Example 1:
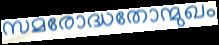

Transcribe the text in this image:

സമരോദ്ധതോന്മുഖം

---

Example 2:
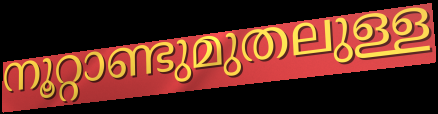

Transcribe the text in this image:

നൂറ്റാണ്ടുമുതലുള്ള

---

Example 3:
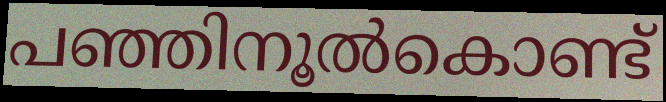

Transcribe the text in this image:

പഞ്ഞിനൂൽകൊണ്ട്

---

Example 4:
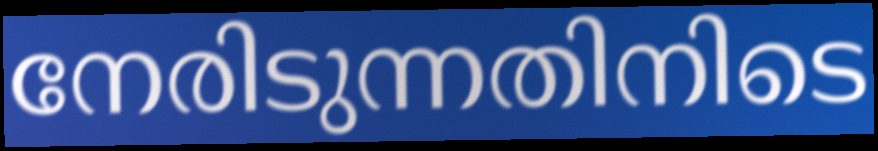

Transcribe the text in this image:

നേരിടുന്നതിനിടെ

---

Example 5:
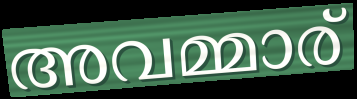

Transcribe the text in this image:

അവമ്മാര്